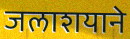
जलाशयाने